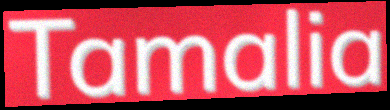
Tamalia